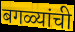
बगळ्यांची